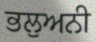
ਭਲੁਅਨੀ